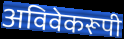
अविवेकरूपी